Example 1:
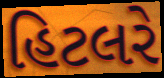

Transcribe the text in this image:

હિટલરે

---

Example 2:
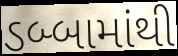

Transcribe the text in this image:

ડબ્બામાંથી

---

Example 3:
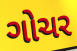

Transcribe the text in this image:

ગોચર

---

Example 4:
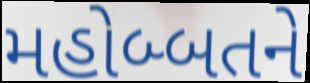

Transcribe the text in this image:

મહોબ્બતને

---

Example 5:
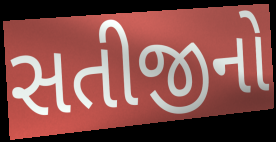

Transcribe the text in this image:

સતીજીનો